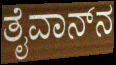
ತೈವಾನ್‌ನ